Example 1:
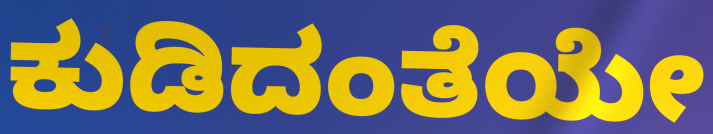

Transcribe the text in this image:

ಕುಡಿದಂತೆಯೇ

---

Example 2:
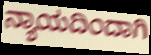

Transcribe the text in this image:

ನ್ಯಾಯದಿಂದಾಗಿ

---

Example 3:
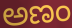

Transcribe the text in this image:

ಅಣಂ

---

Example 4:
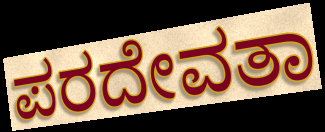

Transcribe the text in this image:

ಪರದೇವತಾ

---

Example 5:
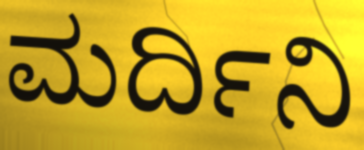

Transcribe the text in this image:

ಮರ್ದಿನಿ